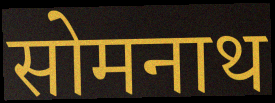
सोमनाथ